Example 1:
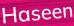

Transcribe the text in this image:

Haseen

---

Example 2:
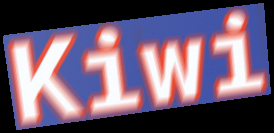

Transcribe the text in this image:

Kiwi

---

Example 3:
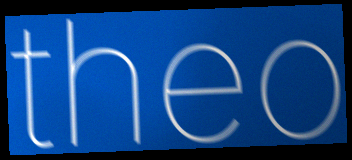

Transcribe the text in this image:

theo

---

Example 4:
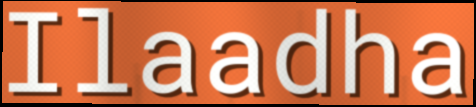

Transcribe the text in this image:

Ilaadha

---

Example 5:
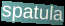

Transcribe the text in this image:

spatula